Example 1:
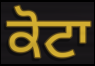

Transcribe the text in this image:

ਕੋਟਾ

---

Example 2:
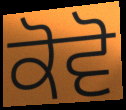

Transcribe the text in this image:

ਕੋਵੋ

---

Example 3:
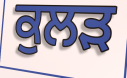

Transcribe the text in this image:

ਕੁਲੜ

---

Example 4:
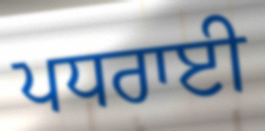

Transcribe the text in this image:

ਪਧਰਾਈ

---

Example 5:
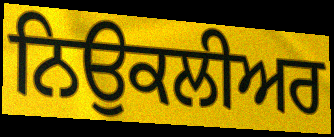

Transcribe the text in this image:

ਨਿਉਕਲੀਅਰ